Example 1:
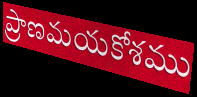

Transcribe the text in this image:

ప్రాణమయకోశము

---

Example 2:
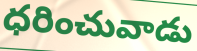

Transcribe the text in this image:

ధరించువాడు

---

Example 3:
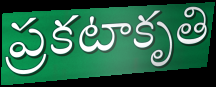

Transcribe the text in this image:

ప్రకటాకృతి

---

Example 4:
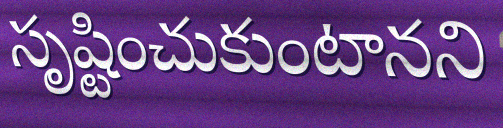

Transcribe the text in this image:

సృష్టించుకుంటానని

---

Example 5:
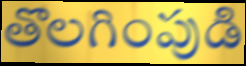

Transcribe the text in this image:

తొలగింపుడి